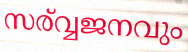
സര്വ്വജനവും